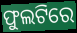
ଫୁଲଟିରେ